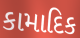
કામાદિક